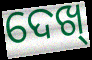
ଦେଖ୍